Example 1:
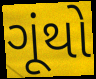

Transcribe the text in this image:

ગૂંથો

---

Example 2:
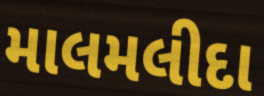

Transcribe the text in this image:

માલમલીદા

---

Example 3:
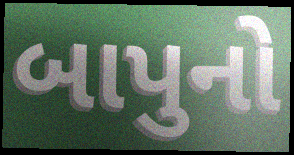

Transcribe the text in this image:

બાપુનો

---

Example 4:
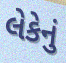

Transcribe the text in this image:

લેકેનું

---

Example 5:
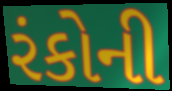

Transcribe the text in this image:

રંકોની